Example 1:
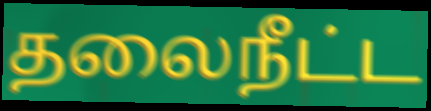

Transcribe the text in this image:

தலைநீட்ட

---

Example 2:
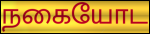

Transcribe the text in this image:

நகையோட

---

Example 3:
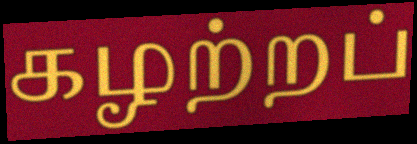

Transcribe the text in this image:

கழற்றப்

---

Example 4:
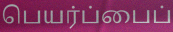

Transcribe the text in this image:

பெயர்ப்பைப்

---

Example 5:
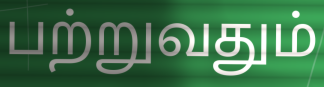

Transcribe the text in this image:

பற்றுவதும்